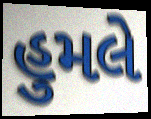
હુમલે